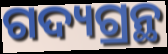
ଗଦ୍ୟଗ୍ରନ୍ଥ